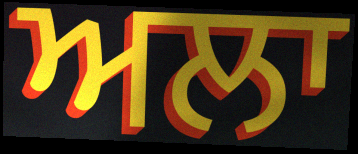
ਅਲਾ